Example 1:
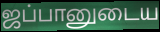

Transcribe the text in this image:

ஜப்பானுடைய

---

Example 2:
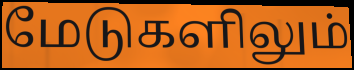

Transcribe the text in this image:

மேடுகளிலும்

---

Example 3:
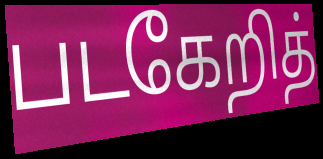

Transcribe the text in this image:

படகேறித்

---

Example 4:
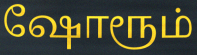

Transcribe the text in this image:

ஷோரூம்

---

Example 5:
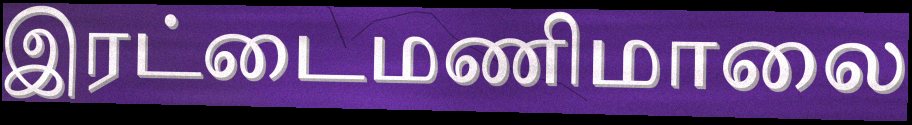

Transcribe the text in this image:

இரட்டைமணிமாலை